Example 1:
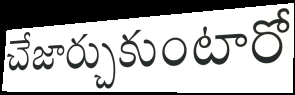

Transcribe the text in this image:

చేజార్చుకుంటారో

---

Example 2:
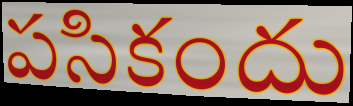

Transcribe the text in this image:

పసికందు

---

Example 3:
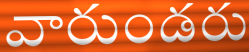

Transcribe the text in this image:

వారుండరు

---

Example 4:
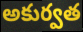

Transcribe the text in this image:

అకుర్వత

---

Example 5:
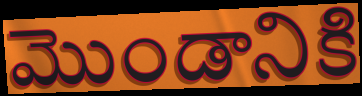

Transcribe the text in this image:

మొండానికి